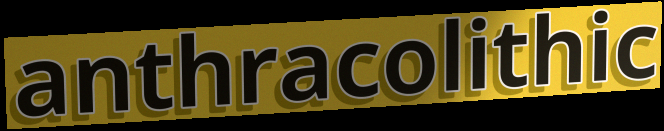
anthracolithic